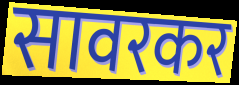
सावरकर